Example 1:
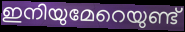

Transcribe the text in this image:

ഇനിയുമേറെയുണ്ട്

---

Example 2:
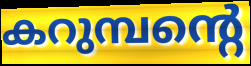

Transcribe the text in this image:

കറുമ്പന്റെ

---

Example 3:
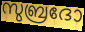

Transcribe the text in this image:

സുബ്രദോ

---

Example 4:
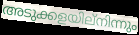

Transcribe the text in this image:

അടുക്കളയില്നിന്നും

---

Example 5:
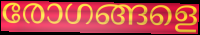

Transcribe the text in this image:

രോഗങ്ങളെ